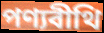
পণ্যবীথি